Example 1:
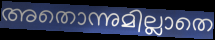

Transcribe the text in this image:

അതൊന്നുമില്ലാതെ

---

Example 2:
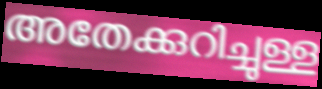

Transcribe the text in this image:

അതേക്കുറിച്ചുള്ള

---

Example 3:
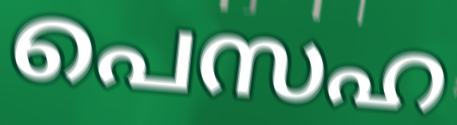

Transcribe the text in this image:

പെസഹ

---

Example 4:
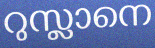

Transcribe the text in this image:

റുസ്ലാനെ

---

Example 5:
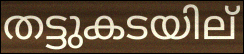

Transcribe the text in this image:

തട്ടുകടയില്